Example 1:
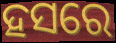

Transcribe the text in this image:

ହସରେ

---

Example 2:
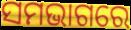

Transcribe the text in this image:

ସମଭାଗରେ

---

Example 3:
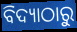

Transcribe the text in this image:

ବିଦ୍ୟାଠାରୁ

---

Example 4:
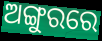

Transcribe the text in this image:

ଅଙ୍ଗୁରରେ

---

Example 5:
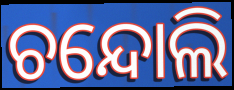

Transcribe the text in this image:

ଚନ୍ଦୋଲି